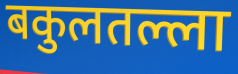
बकुलतल्ला